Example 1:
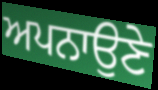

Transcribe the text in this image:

ਅਪਨਾਉਣੇ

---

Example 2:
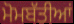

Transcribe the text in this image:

ਮੋਮਬੱਤੀਆਂ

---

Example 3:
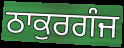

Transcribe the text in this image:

ਠਾਕੁਰਗੰਜ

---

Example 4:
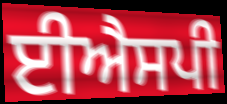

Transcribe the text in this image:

ਈਐਸਪੀ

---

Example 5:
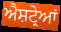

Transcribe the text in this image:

ਐਸ਼ਟ੍ਰੇਆਂ